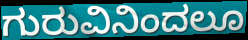
ಗುರುವಿನಿಂದಲೂ